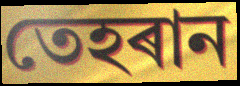
তেহৰান